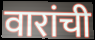
वारांची